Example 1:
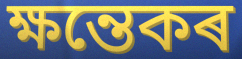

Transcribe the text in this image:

ক্ষন্তেকৰ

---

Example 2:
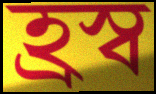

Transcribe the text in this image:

হ্ৰস্ব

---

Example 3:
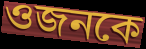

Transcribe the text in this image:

ওজনকে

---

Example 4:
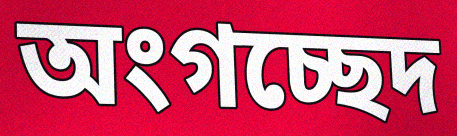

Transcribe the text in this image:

অংগচ্ছেদ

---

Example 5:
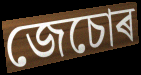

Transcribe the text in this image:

জেচোৰ